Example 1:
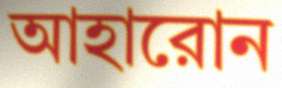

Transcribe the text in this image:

আহারোন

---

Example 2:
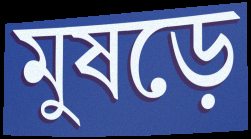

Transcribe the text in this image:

মুষড়ে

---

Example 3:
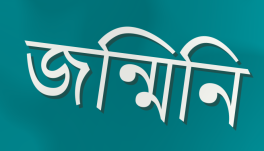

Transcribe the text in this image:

জন্মিনি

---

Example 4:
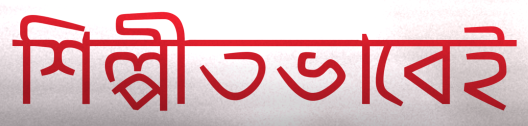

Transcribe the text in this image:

শিল্পীতভাবেই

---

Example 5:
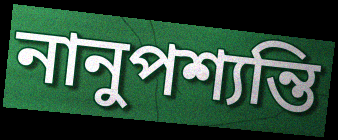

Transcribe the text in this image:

নানুপশ্যন্তি